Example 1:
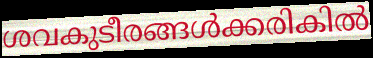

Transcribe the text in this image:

ശവകുടീരങ്ങൾക്കരികിൽ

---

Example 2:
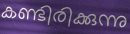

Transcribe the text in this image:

കണ്ടിരിക്കുന്നു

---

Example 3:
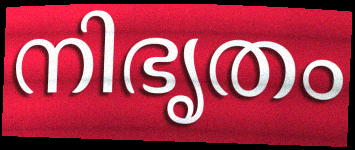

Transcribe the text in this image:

നിഭൃതം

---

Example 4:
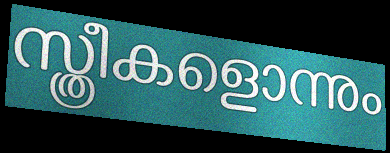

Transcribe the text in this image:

സ്ത്രീകളൊന്നും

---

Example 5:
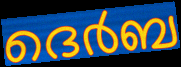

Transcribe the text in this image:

ദെർബ